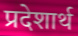
प्रदेशार्थ